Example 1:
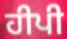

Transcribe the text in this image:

ਹੀਪੀ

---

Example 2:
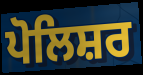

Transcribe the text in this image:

ਪੋਲਿਸ਼ਰ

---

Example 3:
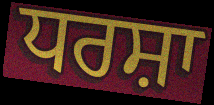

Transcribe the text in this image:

ਧਰਸ਼ਾ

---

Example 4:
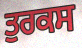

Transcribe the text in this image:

ਤੁਰਕਸ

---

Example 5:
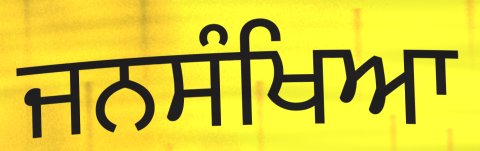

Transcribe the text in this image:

ਜਨਸੰਖਿਆ